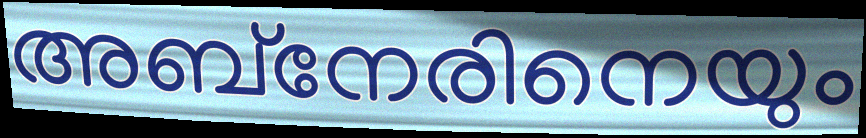
അബ്നേരിനെയും